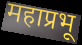
महाप्रभू